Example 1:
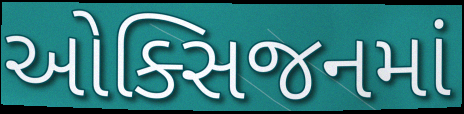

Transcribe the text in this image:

ઓક્સિજનમાં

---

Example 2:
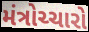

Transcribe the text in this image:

મંત્રોચ્ચારો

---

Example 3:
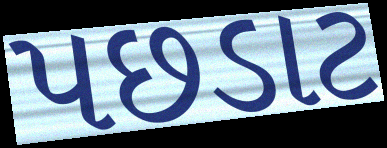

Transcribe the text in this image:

પછડાટ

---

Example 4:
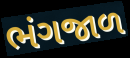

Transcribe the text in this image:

ભંગજાળ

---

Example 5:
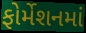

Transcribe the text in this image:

ફોર્મેશનમાં